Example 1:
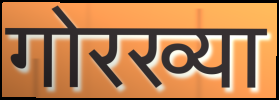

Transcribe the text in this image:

गोरख्या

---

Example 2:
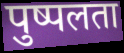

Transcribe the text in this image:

पुष्पलता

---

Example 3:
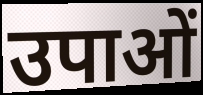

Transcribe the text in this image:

उपाओं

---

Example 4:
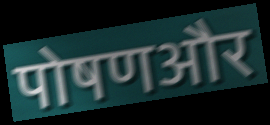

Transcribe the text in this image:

पोषणऔर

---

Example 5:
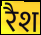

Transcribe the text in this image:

रैश